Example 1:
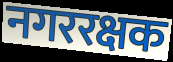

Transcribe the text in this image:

नगररक्षक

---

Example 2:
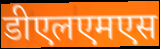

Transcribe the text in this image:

डीएलएमएस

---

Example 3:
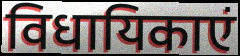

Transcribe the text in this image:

विधायिकाएं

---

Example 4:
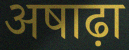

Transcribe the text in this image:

अषाढ़ा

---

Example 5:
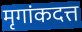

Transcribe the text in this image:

मृगांकदत्त